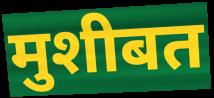
मुशीबत